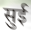
सुई